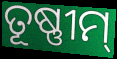
ତୂଷ୍ଣୀମ୍